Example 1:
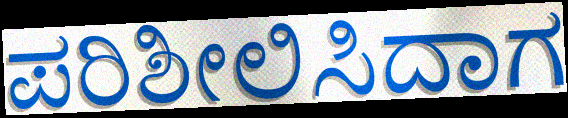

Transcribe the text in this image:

ಪರಿಶೀಲಿಸಿದಾಗ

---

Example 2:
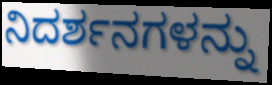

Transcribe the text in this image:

ನಿದರ್ಶನಗಳನ್ನು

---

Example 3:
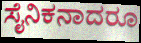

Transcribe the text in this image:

ಸೈನಿಕನಾದರೂ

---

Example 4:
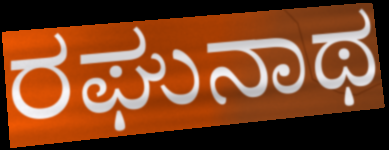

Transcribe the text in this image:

ರಘುನಾಥ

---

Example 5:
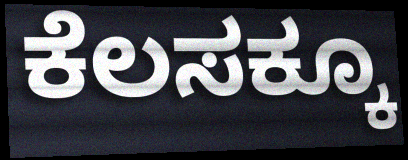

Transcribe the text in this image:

ಕೆಲಸಕ್ಕೂ